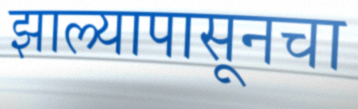
झाल्यापासूनचा